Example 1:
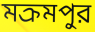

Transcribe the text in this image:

মক্রমপুর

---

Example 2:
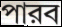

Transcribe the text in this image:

পারব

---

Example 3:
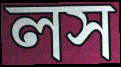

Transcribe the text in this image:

লস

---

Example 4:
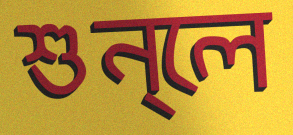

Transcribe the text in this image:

শুন্‌লে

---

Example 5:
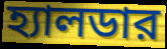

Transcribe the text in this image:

হ্যালডার